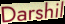
Darshil